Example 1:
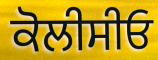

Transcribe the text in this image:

ਕੋਲੀਸੀਓ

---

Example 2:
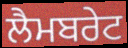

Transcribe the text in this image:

ਲੈਮਬਰੇਟ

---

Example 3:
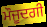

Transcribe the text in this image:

ਮੌਜੂਦਗੀ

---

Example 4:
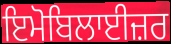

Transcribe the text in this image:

ਇਮੋਬਿਲਾਈਜ਼ਰ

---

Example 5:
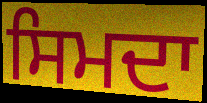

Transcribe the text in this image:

ਸਿਮਦਾ